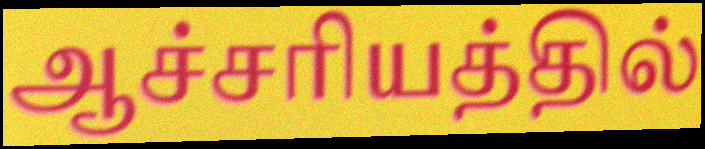
ஆச்சரியத்தில்